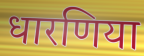
धारणिया